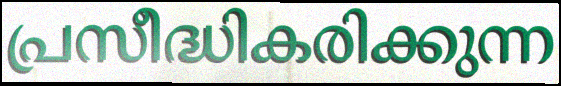
പ്രസീദ്ധികരിക്കുന്ന